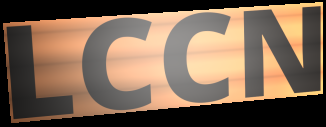
LCCN